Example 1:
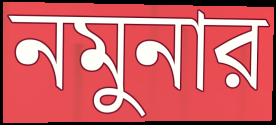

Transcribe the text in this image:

নমুনার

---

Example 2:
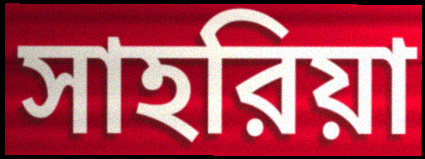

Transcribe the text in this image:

সাহরিয়া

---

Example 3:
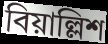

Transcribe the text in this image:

বিয়াল্লিশ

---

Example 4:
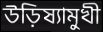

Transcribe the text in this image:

উড়িষ্যামুখী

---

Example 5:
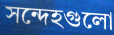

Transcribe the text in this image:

সন্দেহগুলো